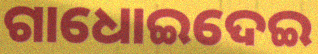
ଗାଧୋଇଦେଇ